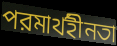
পরমার্থহীনতা